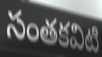
సంతకవిటి